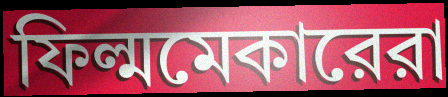
ফিল্মমেকারেরা